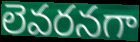
లెవరనగా